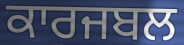
ਕਾਰਜਬਲ